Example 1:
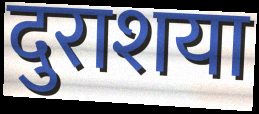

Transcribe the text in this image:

दुराशया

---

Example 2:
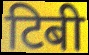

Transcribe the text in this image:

टिबी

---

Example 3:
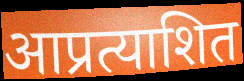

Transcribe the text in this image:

आप्रत्याशित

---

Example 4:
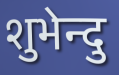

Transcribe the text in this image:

शुभेन्दु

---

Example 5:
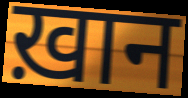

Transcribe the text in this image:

ख़ान